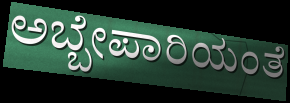
ಅಬ್ಬೇಪಾರಿಯಂತೆ